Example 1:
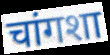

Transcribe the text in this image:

चांगशा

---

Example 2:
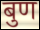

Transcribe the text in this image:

बुण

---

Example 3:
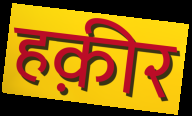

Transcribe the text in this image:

हक़ीर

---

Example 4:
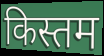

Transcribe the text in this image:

किस्तम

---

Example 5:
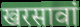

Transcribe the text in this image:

खरसावां